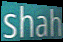
shah